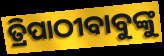
ତ୍ରିପାଠୀବାବୁଙ୍କୁ